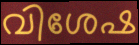
വിശേഷ